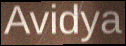
Avidya